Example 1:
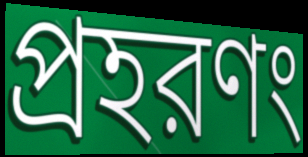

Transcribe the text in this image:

প্রহরণং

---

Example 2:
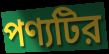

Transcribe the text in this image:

পণ্যটির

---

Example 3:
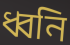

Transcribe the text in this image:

ধ্বনি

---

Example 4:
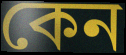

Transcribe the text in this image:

কেন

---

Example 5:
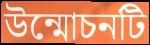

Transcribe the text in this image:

উন্মোচনটি